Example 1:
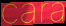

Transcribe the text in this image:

cara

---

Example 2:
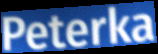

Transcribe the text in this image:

Peterka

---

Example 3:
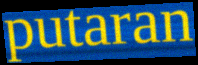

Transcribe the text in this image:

putaran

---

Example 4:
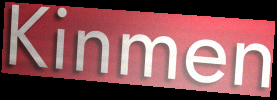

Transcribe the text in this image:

Kinmen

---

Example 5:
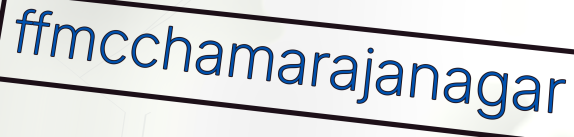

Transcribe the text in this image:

ffmcchamarajanagar